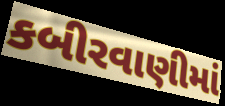
કબીરવાણીમાં